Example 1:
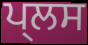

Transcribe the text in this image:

ਪ੍ਲਸ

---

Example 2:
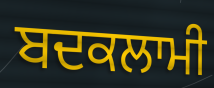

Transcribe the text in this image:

ਬਦਕਲਾਮੀ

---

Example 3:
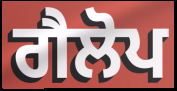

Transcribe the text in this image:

ਗੈਲੋਪ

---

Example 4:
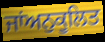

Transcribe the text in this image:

ਜਾਂਅਨੁਕੂਲਿਤ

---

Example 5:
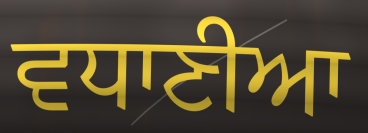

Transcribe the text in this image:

ਵਧਾਣੀਆ